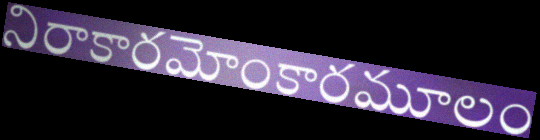
నిరాకారమోంకారమూలం